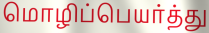
மொழிப்பெயர்த்து